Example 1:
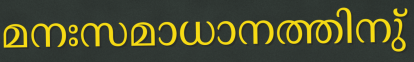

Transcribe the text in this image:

മനഃസമാധാനത്തിനു്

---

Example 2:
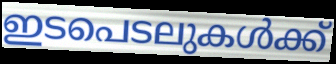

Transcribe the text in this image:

ഇടപെടലുകൾക്ക്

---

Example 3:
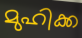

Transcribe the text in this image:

മുഹിക്ക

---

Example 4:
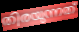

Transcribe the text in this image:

തിരയുന്നത്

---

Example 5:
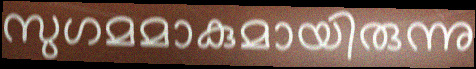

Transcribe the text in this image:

സുഗമമാകുമായിരുന്നു